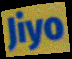
Jiyo